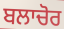
ਬਲਾਚੋਰ